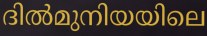
ദിൽമുനിയയിലെ